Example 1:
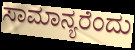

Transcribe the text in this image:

ಸಾಮಾನ್ಯರೆಂದು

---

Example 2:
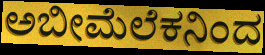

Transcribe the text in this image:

ಅಬೀಮೆಲೆಕನಿಂದ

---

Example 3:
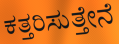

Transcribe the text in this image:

ಕತ್ತರಿಸುತ್ತೇನೆ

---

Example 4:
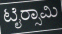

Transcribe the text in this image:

ಟೈರ‍್ಸಾಮಿ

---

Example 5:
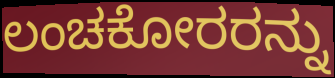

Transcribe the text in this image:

ಲಂಚಕೋರರನ್ನು